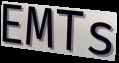
EMTs